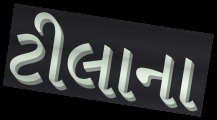
ટીલાના